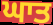
ਘਾਤ